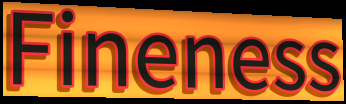
Fineness